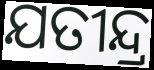
ଯତୀନ୍ଦ୍ର